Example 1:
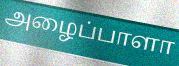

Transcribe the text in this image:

அழைப்பாளா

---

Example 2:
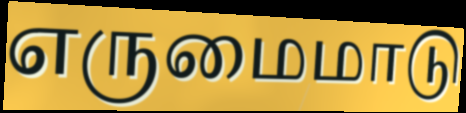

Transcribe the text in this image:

எருமைமாடு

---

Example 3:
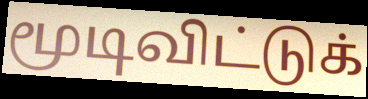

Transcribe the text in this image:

மூடிவிட்டுக்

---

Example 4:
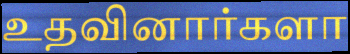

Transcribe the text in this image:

உதவினார்களா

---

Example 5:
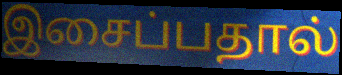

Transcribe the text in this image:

இசைப்பதால்